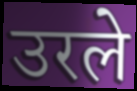
उरले